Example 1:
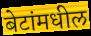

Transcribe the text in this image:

बेटांमधील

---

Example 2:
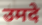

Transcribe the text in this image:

उमदे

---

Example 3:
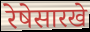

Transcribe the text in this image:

रेषेसारखे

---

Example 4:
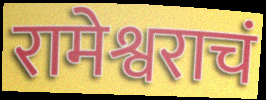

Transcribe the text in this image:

रामेश्वराचं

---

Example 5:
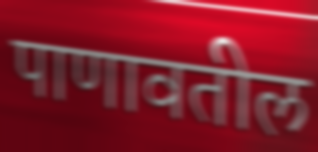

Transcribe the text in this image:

पाणावतील